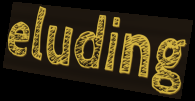
eluding